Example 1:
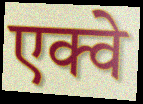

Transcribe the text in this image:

एक्वे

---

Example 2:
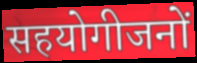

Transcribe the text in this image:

सहयोगीजनों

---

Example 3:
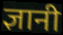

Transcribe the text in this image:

ज्ञानी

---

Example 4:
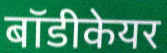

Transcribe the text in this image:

बॉडीकेयर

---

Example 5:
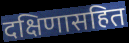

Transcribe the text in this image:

दक्षिणासहित